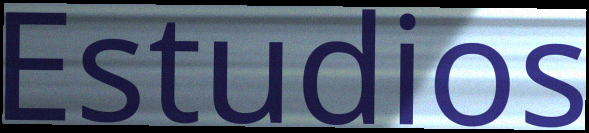
Estudios